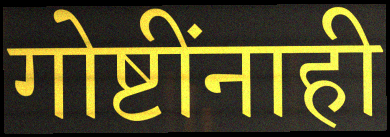
गोष्टींनाही